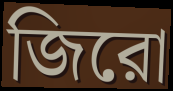
জিরো